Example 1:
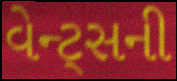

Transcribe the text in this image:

વેન્ટ્સની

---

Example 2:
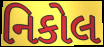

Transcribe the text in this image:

નિકોલ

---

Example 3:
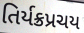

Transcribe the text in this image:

તિર્યક્રપ્રચય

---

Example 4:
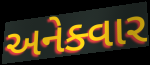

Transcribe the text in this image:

અનેક્વાર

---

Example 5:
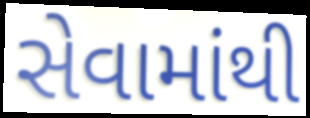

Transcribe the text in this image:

સેવામાંથી